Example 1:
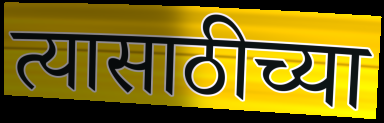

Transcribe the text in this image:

त्यासाठीच्या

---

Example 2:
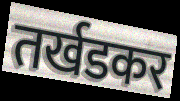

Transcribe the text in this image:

तर्खडकर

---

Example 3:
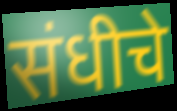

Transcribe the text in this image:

संधीचे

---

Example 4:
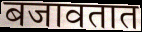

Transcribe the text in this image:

बजावतात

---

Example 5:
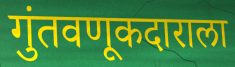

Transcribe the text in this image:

गुंतवणूकदाराला